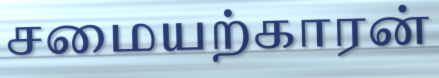
சமையற்காரன்